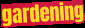
gardening